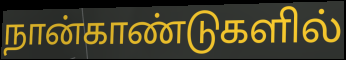
நான்காண்டுகளில்